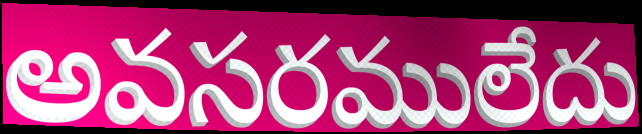
అవసరములేదు